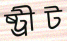
ষ্ট্ৰীট